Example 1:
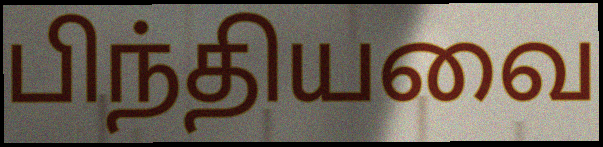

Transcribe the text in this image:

பிந்தியவை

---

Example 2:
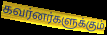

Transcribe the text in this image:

கவர்னர்களுக்கும்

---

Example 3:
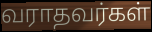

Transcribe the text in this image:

வராதவர்கள்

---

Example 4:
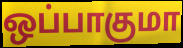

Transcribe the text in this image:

ஒப்பாகுமா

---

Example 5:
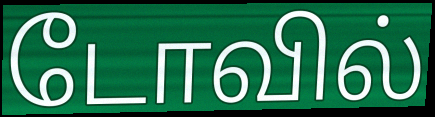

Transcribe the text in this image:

டோவில்